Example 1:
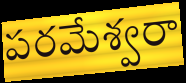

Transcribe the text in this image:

పరమేశ్వరా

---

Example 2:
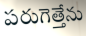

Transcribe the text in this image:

పరుగెత్తేను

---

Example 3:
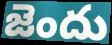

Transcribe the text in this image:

జెందు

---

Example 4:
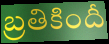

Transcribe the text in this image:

బ్రతికిందీ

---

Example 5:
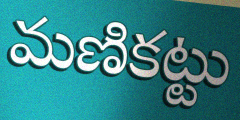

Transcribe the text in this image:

మణికట్టు